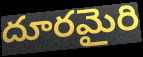
దూరమైరి